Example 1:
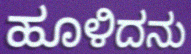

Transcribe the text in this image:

ಹೂಳಿದನು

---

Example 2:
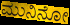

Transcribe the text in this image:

ಮುನಿನೋ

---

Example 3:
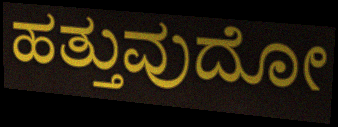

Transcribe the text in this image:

ಹತ್ತುವುದೋ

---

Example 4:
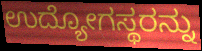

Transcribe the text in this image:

ಉದ್ಯೋಗಸ್ಥರನ್ನು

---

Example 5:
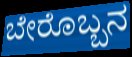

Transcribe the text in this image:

ಬೇರೊಬ್ಬನ